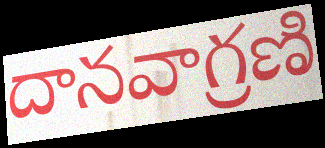
దానవాగ్రణి